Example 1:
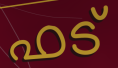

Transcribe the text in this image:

ഫട്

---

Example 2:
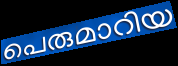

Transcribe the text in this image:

പെരുമാറിയ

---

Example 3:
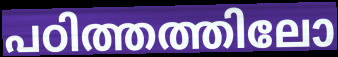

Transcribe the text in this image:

പഠിത്തത്തിലോ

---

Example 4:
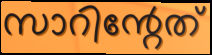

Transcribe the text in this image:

സാറിന്റേത്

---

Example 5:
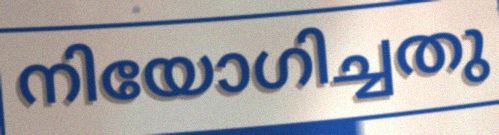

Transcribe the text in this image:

നിയോഗിച്ചതു